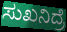
ಸುಖನಿದ್ರೆ